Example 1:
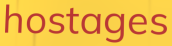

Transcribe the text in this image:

hostages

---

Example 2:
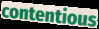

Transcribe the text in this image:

contentious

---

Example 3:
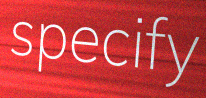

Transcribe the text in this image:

specify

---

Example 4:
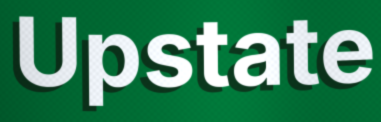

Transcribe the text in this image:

Upstate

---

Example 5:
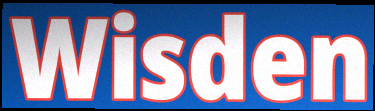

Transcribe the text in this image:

Wisden